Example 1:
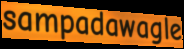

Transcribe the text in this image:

sampadawagle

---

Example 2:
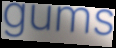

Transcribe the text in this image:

gums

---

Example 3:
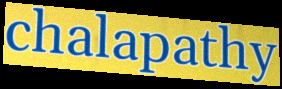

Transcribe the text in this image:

chalapathy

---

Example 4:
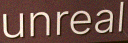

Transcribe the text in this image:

unreal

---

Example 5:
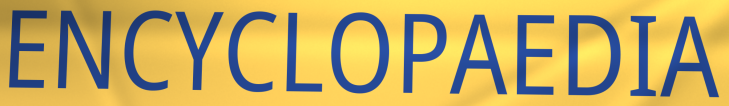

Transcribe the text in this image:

ENCYCLOPAEDIA